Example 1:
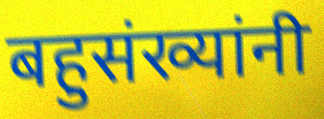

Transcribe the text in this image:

बहुसंख्यांनी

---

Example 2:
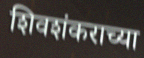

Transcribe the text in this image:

शिवशंकराच्या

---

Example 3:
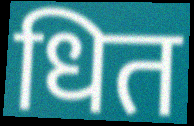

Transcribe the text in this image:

धित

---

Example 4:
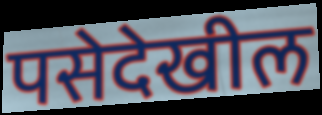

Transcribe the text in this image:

पसेदेखील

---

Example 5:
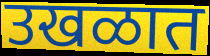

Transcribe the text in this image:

उखळात